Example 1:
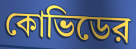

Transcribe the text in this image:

কোভিডের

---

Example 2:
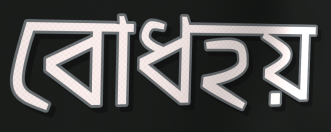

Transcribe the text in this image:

বোধহয়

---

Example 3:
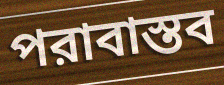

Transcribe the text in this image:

পরাবাস্তব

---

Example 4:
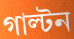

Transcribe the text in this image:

গাল্টন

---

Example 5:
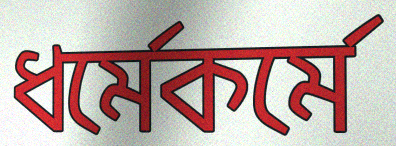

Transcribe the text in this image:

ধর্মেকর্মে